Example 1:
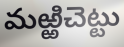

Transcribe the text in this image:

మఱ్ఱిచెట్టు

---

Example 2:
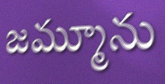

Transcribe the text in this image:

జమ్మూను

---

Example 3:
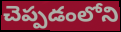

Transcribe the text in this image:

చెప్పడంలోని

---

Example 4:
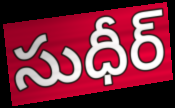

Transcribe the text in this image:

సుధీర్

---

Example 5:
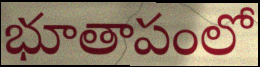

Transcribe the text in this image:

భూతాపంలో